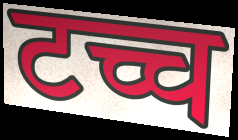
टच्च